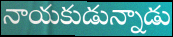
నాయకుడున్నాడు